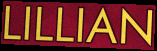
LILLIAN